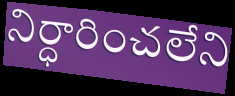
నిర్ధారించలేని